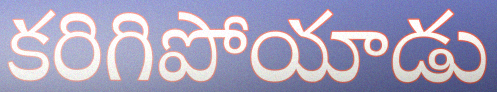
కరిగిపోయాడు